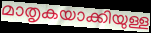
മാതൃകയാക്കിയുള്ള